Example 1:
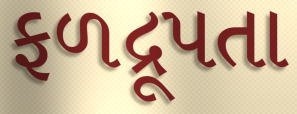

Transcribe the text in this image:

ફળદ્રૂપતા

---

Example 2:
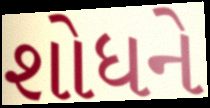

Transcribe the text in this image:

શોધને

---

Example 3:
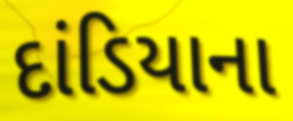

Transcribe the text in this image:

દાંડિયાના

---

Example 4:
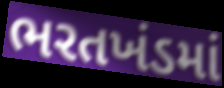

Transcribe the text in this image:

ભરતખંડમાં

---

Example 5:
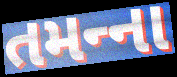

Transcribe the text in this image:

તમન્‍ના